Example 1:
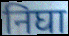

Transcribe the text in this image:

निघा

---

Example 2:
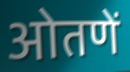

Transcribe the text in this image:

ओतणें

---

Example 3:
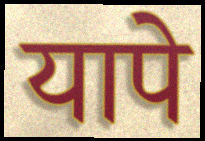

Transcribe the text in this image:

यापे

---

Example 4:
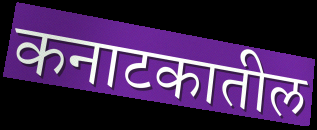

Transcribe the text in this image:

कनाटकातील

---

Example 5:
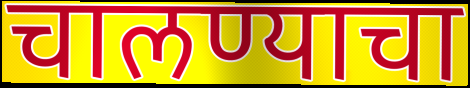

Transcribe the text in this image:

चालण्याचा